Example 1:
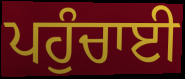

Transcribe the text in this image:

ਪਹੁੰਚਾਈ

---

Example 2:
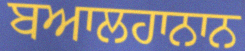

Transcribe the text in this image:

ਬਆਲਹਾਨਾਨ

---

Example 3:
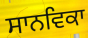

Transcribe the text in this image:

ਸਾਨਵਿਕਾ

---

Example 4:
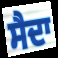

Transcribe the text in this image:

ਸੈਦਾ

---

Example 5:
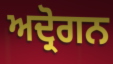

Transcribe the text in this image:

ਅਦ੍ਰੋਗਨ